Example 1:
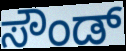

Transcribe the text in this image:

ಸೌಂಡ್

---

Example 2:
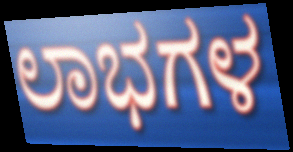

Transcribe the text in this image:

ಲಾಭಗಳ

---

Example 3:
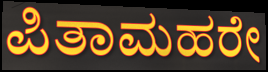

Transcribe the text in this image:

ಪಿತಾಮಹರೇ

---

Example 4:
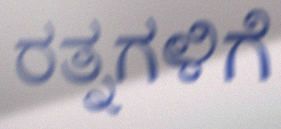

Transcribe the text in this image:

ರತ್ನಗಳಿಗೆ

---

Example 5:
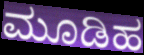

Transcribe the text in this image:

ಮೂಡಿಹ